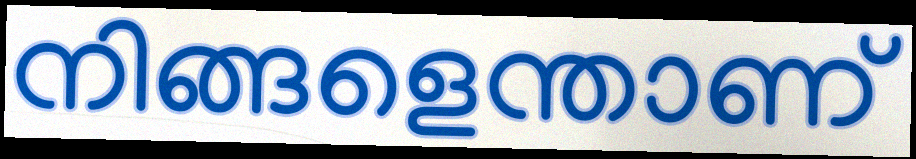
നിങ്ങളെന്താണ്